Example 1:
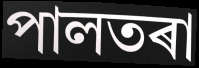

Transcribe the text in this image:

পালতৰা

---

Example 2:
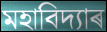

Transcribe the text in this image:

মহাবিদ্যাৰ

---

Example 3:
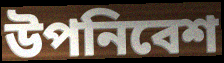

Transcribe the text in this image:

উপনিবেশ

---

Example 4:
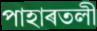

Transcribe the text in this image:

পাহাৰতলী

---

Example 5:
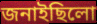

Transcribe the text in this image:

জনাইছিলো